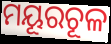
ମୟୂରଚୂଳ